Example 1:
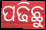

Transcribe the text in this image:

ପଢିଛୁ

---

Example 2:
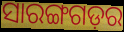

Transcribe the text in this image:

ସାରଙ୍ଗଗଡ଼ର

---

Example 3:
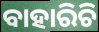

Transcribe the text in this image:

ବାହାରିଚି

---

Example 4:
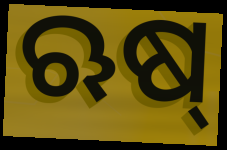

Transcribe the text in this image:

ଋଷ୍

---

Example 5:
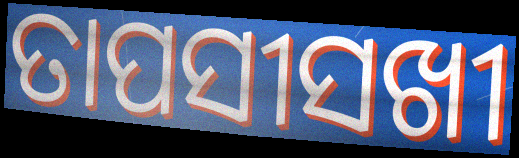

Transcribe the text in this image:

ତାପସୀସଖୀ